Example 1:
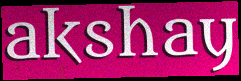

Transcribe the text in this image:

akshay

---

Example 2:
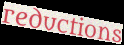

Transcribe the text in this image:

reductions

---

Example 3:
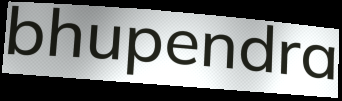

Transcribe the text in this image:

bhupendra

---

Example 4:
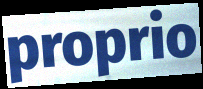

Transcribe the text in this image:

proprio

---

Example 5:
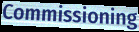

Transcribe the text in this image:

Commissioning